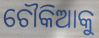
ଚୌକିଆକୁ